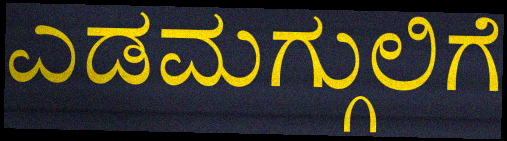
ಎಡಮಗ್ಗುಲಿಗೆ